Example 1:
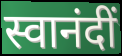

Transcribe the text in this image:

स्वानंदीं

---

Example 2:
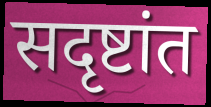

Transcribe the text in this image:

सदृष्टांत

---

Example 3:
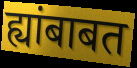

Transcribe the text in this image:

ह्यांबाबत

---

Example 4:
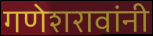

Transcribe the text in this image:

गणेशरावांनी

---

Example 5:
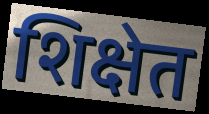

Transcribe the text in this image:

शिक्षेत